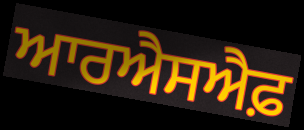
ਆਰਐਸਐਫ਼